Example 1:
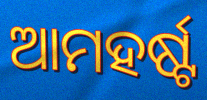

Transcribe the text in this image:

ଆମହର୍ଷ୍ଟ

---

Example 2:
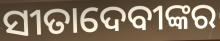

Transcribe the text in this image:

ସୀତାଦେବୀଙ୍କର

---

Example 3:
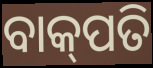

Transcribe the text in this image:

ବାକ୍‌ପତି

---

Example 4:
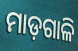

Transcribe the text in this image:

ମାଡ଼ଗାଳି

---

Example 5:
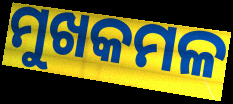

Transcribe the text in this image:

ମୁଖକମଳ